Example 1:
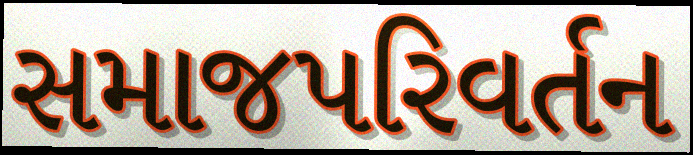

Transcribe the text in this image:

સમાજપરિવર્તન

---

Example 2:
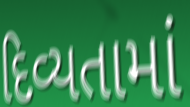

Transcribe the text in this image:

દિવ્યતામાં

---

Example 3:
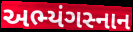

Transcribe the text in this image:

અભ્યંગસ્નાન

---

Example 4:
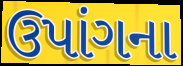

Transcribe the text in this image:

ઉપાંગના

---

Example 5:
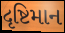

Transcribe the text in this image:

દૃષ્ટિમાન